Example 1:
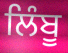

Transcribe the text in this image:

ਲਿੰਬੂ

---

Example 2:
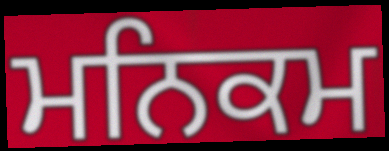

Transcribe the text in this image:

ਮਨਿਕਮ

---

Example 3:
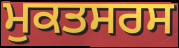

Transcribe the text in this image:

ਮੁਕਤਸਰਸ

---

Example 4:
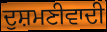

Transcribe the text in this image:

ਦੁਸ਼ਮਣੀਵਾਦੀ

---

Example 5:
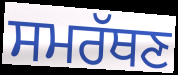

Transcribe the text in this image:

ਸਮਰੱਥਣ